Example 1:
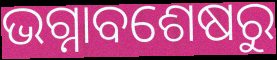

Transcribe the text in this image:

ଭଗ୍ନାବଶେଷରୁ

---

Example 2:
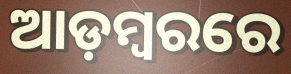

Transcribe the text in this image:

ଆଡ଼ମ୍ୱରରେ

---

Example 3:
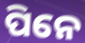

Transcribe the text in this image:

ପିନେ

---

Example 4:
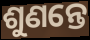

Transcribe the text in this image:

ଶୁଣନ୍ତେ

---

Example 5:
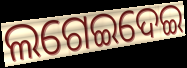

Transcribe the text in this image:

ଲଗେଇଦେଇ